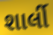
શાર્લી